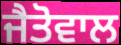
ਜੈਤੋਵਾਲ